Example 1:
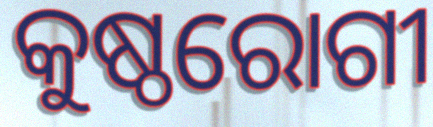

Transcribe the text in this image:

କୁଷ୍ଠରୋଗୀ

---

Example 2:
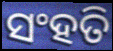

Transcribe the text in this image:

ସଂହତି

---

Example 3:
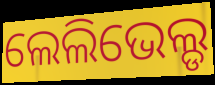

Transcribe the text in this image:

ଲେଲିଭେଲ୍ଡ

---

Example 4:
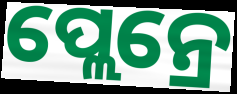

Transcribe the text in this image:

ପ୍ଲେନ୍ରେ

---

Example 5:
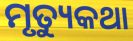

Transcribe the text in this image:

ମୃତ୍ୟୁକଥା